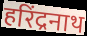
हरिंद्रनाथ